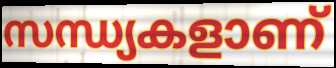
സന്ധ്യകളാണ്